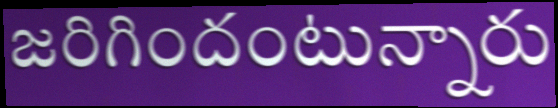
జరిగిందంటున్నారు